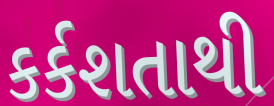
કર્કશતાથી